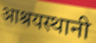
आश्रयस्थानी